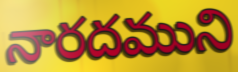
నారదముని